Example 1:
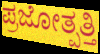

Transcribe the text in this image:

ಪ್ರಜೋತ್ಪತ್ತಿ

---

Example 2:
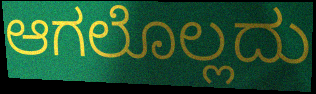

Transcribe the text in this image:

ಆಗಲೊಲ್ಲದು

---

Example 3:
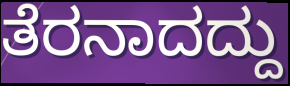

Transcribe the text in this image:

ತೆರನಾದದ್ದು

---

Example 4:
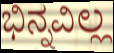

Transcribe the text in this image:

ಭಿನ್ನವಿಲ್ಲ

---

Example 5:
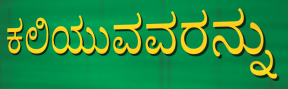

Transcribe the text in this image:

ಕಲಿಯುವವರನ್ನು